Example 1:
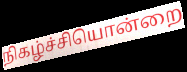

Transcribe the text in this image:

நிகழ்ச்சியொன்றை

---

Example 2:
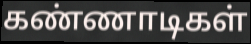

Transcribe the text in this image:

கண்ணாடிகள்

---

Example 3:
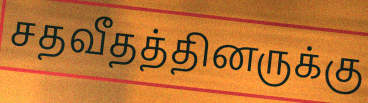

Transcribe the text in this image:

சதவீதத்தினருக்கு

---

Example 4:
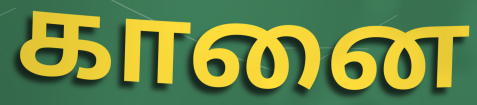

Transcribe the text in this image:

கானை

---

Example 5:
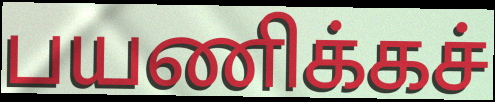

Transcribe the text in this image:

பயணிக்கச்